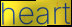
heart